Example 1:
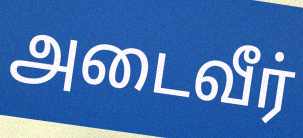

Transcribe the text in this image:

அடைவீர்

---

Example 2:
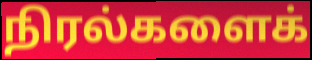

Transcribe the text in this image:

நிரல்களைக்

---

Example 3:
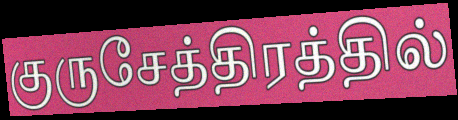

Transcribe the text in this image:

குருசேத்திரத்தில்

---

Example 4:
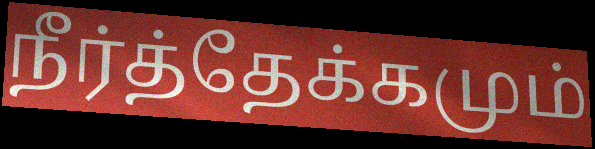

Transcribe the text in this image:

நீர்த்தேக்கமும்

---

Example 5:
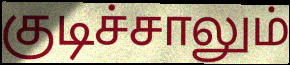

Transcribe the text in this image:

குடிச்சாலும்